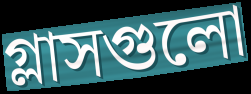
গ্লাসগুলো